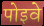
पोइवे